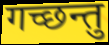
गच्छन्तु